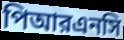
পিআরএনসি